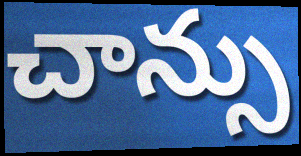
చాన్సు